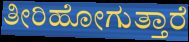
ತೀರಿಹೋಗುತ್ತಾರೆ